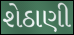
શેઠાણી